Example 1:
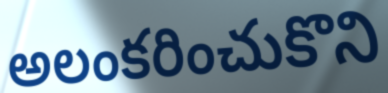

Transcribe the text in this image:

అలంకరించుకొని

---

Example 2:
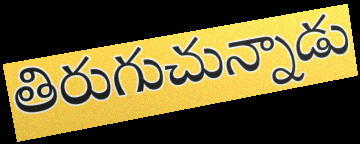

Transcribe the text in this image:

తిరుగుచున్నాడు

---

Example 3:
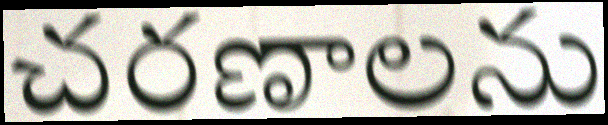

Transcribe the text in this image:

చరణాలను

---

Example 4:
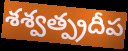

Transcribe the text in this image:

శశ్వత్ప్రదీప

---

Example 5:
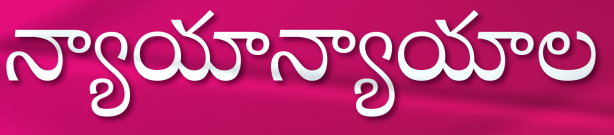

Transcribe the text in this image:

న్యాయాన్యాయాల